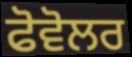
ਫੋਵੋਲਰ